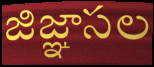
జిజ్ఞాసల